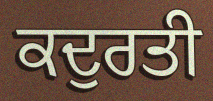
ਕਦੁਰਤੀ